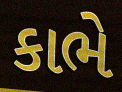
કાભે